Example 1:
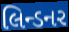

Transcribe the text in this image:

લિન્ડનર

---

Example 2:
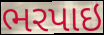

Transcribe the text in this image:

ભરપાઇ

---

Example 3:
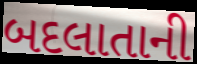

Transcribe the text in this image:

બદલાતાની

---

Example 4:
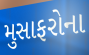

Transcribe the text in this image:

મુસાફરોના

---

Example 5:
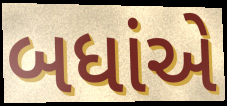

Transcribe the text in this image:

બધાંએ